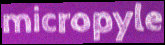
micropyle